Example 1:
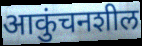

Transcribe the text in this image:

आकुंचनशील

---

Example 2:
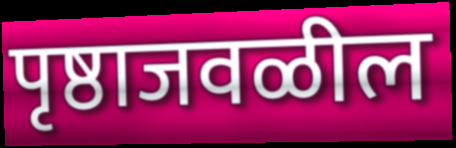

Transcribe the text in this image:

पृष्ठाजवळील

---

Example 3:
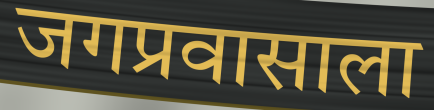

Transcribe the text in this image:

जगप्रवासाला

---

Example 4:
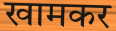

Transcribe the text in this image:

खामकर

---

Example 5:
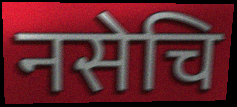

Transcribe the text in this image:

नसेचि